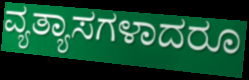
ವ್ಯತ್ಯಾಸಗಳಾದರೂ